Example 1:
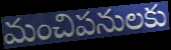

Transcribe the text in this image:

మంచిపనులకు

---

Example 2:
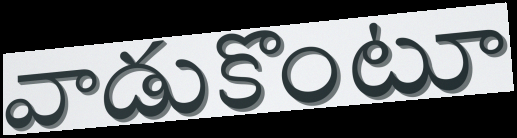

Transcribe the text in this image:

వాడుకొంటూ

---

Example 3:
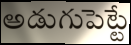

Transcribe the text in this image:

అడుగుపెట్టే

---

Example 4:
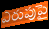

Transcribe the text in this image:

ఎరుపుపై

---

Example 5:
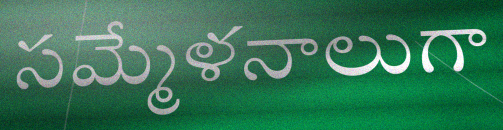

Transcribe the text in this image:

సమ్మేళనాలుగా